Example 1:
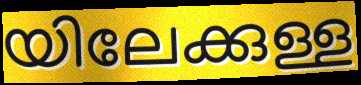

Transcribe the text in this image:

യിലേക്കുള്ള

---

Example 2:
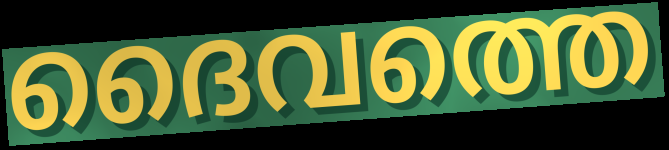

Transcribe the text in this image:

ദൈവത്തെ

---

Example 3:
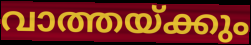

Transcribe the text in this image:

വാത്തയ്ക്കും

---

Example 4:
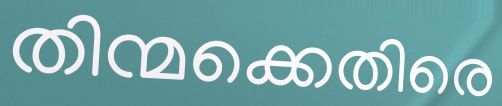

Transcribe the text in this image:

തിന്മക്കെതിരെ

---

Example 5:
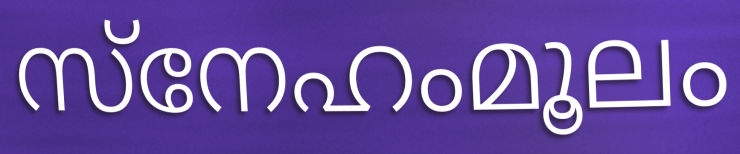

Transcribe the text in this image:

സ്നേഹംമൂലം